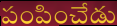
పంపించేడు